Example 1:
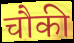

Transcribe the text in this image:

चौकी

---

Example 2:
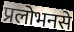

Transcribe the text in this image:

प्रलोभनसे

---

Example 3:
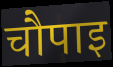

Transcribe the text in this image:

चौपाइ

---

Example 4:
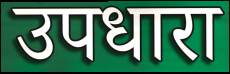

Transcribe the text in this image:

उपधारा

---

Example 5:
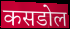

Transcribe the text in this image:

कसडोल